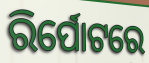
ରିର୍ପୋଟରେ